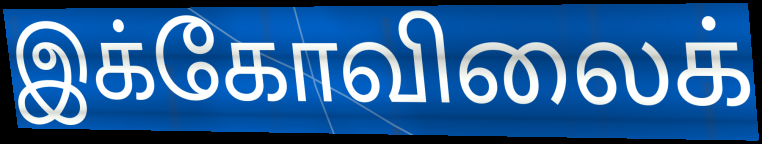
இக்கோவிலைக்